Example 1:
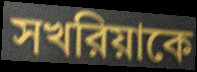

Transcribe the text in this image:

সখরিয়াকে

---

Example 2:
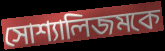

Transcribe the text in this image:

সোশ্যালিজমকে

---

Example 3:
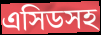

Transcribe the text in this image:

এসিডসহ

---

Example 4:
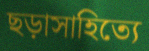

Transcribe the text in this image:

ছড়াসাহিত্যে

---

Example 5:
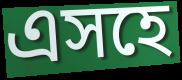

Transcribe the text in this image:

এসহে